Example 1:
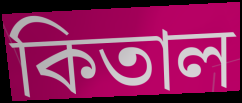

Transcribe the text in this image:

কিতাল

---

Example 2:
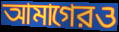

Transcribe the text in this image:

আমাগেরও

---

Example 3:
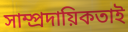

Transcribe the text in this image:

সাম্প্রদায়িকতাই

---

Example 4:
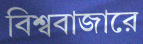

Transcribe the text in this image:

বিশ্ববাজারে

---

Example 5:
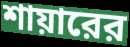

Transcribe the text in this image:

শায়ারের